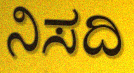
ನಿಸದಿ